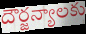
దౌర్జన్యాలకు